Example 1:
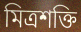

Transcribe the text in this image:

মিত্রশক্তি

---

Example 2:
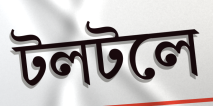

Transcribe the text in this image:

টলটলে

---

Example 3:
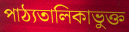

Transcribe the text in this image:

পাঠ্যতালিকাভুক্ত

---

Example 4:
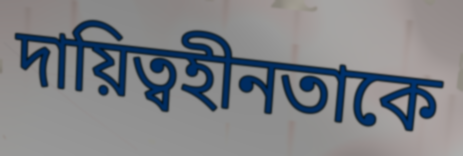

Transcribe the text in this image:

দায়িত্বহীনতাকে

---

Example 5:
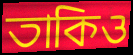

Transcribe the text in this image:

তাকিও